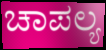
ಚಾಪಲ್ಯ